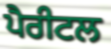
ਪੈਰੀਟਲ